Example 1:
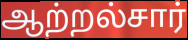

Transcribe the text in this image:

ஆற்றல்சார்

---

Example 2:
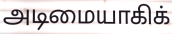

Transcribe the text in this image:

அடிமையாகிக்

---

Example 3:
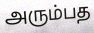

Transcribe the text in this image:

அரும்பத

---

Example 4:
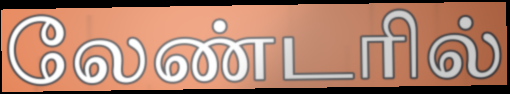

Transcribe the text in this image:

லேண்டரில்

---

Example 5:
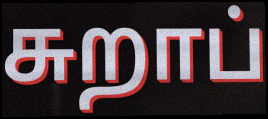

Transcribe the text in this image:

சுறாப்